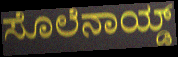
ಸೊಲೆನಾಯ್ಡ್